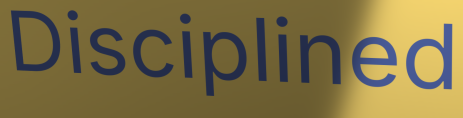
Disciplined